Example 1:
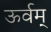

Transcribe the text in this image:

ऊर्वम्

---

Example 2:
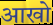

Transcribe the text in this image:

आखो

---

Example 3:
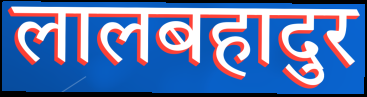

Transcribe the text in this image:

लालबहादुर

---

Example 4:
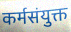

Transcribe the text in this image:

कर्मसंयुक्त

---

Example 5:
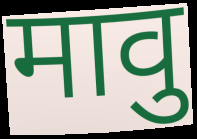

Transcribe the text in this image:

मावु